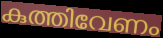
കുത്തിവേണം